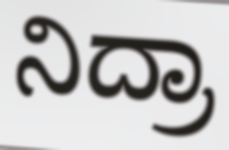
ನಿದ್ರಾ